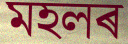
মহলৰ